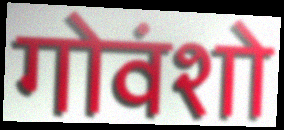
गोवंशो